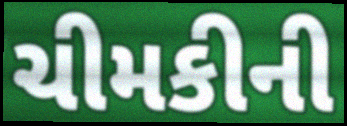
ચીમકીની